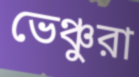
ভেঞ্চুরা